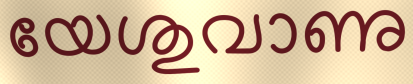
യേശുവാണു